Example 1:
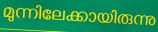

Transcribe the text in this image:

മുന്നിലേക്കായിരുന്നു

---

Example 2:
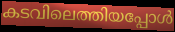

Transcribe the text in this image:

കടവിലെത്തിയപ്പോൾ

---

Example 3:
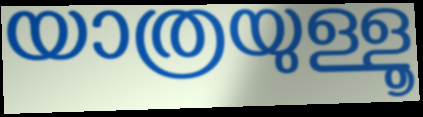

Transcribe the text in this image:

യാത്രയുള്ളൂ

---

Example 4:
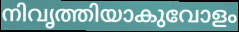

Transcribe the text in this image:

നിവൃത്തിയാകുവോളം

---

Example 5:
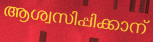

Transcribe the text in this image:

ആശ്വസിപ്പിക്കാന്